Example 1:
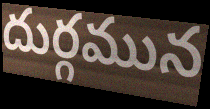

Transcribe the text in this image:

దుర్గమున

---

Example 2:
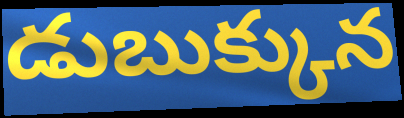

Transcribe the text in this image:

డుబుక్కున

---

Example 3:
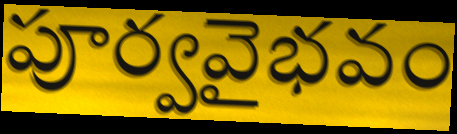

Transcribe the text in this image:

పూర్వవైభవం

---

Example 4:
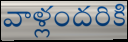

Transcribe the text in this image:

వాళ్లందరికి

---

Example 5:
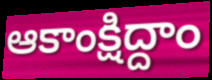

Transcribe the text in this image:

ఆకాంక్షిద్దాం